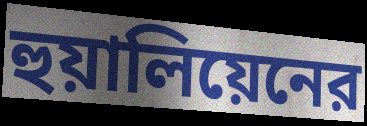
হুয়ালিয়েনের